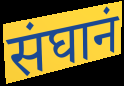
संघानं